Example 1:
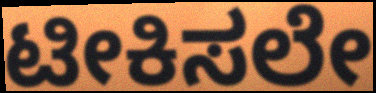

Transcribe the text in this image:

ಟೀಕಿಸಲೇ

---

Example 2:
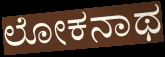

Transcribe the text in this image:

ಲೋಕನಾಥ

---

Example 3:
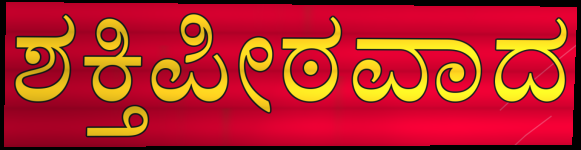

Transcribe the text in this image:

ಶಕ್ತಿಪೀಠವಾದ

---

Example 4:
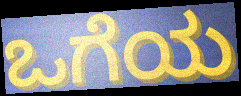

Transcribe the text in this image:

ಒಗೆಯ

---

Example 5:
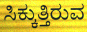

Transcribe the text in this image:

ಸಿಕ್ಕುತ್ತಿರುವ